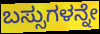
ಬಸ್ಸುಗಳನ್ನೇ